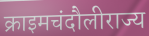
क्राइमचंदौलीराज्य